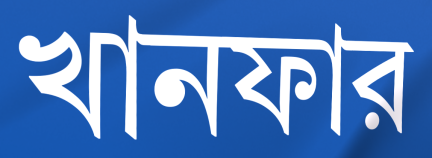
খানফার